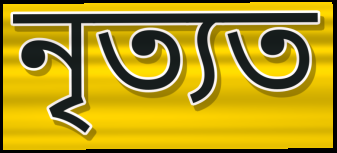
নৃত্যত